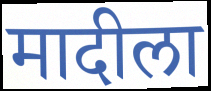
मादीला